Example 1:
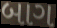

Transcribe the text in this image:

બાગ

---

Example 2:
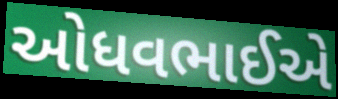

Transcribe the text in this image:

ઓધવભાઈએ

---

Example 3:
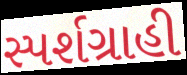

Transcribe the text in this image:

સ્પર્શગ્રાહી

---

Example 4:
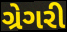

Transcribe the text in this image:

ગ્રેગરી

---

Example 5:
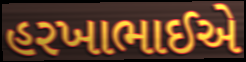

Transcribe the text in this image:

હરખાભાઈએ